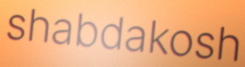
shabdakosh